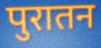
पुरातन